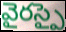
వైరస్పై